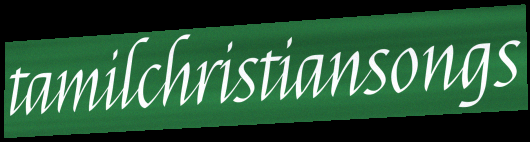
tamilchristiansongs